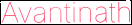
Avantinath